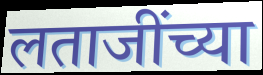
लताजींच्या